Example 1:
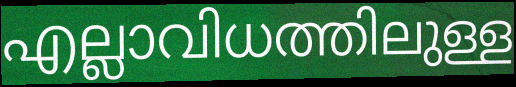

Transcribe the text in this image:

എല്ലാവിധത്തിലുള്ള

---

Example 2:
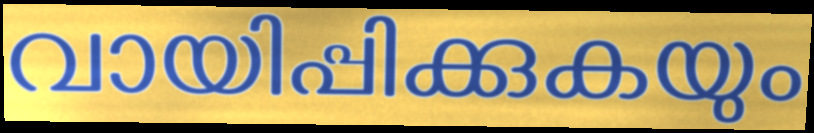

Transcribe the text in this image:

വായിപ്പിക്കുകയും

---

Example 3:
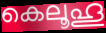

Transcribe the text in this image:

കെലൂഹൂ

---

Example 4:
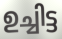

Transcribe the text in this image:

ഉച്ചിട്ട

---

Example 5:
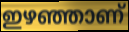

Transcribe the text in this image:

ഇഴഞ്ഞാണ്